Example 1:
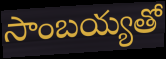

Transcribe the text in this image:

సాంబయ్యతో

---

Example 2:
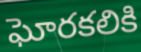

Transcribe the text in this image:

ఘోరకలికి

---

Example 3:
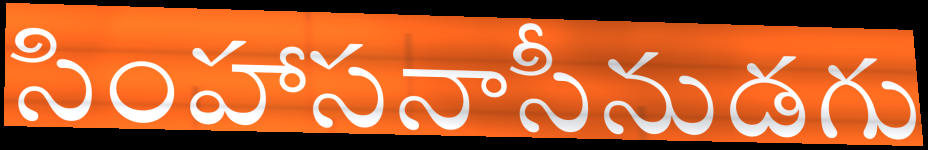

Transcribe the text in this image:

సింహాసనాసీనుడగు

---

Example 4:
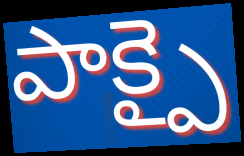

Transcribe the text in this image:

పాక్పై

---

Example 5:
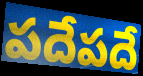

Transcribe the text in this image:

పదేపదే